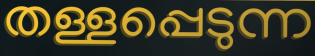
തള്ളപ്പെടുന്ന